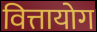
वित्तायोग